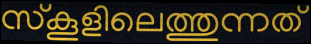
സ്കൂളിലെത്തുന്നത്